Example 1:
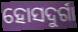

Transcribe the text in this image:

ହୋସଦୁର୍ଗା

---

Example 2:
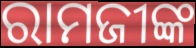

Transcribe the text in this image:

ରାମଜୀଙ୍କ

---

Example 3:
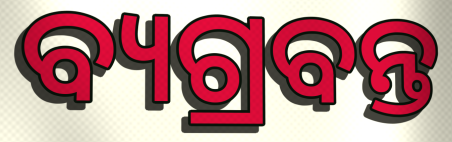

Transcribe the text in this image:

ବ୍ୟଗ୍ରବନ୍ତ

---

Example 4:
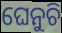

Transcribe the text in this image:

ଘେନୁଚି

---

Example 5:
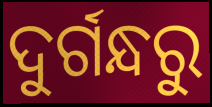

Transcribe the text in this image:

ଦୁର୍ଗନ୍ଧରୁ